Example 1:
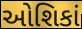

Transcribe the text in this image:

ઓશિકાં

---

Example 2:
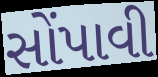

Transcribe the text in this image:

સોંપાવી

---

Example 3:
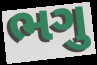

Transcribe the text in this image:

ભગુ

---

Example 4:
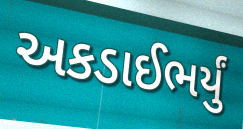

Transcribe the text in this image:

અકડાઈભર્યું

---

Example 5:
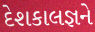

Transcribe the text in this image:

દેશકાલજ્ઞને